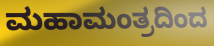
ಮಹಾಮಂತ್ರದಿಂದ